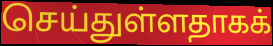
செய்துள்ளதாகக்